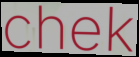
chek